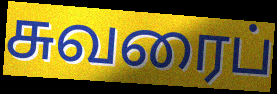
சுவரைப்